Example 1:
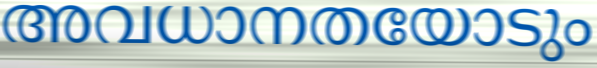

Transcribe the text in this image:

അവധാനതയോടും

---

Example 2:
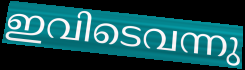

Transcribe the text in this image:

ഇവിടെവന്നു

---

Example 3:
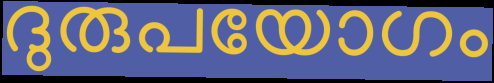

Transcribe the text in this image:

ദുരുപയോഗം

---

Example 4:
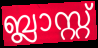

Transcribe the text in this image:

ബ്ലാസ്റ്റ്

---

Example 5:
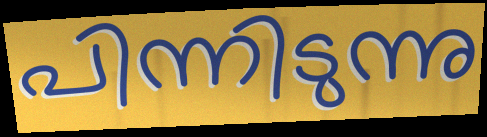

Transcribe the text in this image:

പിന്നിടുന്നു